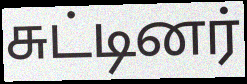
சுட்டினர்